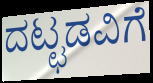
ದಟ್ಟಡವಿಗೆ